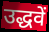
उद्धवें